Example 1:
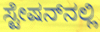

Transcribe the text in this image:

ಸ್ಟೇಷನ್‌ನಲ್ಲಿ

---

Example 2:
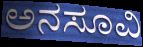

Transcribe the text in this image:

ಅನಸೂವಿ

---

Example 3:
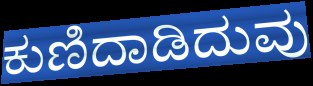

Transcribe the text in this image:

ಕುಣಿದಾಡಿದುವು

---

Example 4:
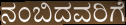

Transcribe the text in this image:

ನಂಬಿದವರಿಗೆ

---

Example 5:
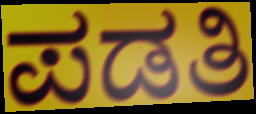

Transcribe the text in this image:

ಪಡತಿ